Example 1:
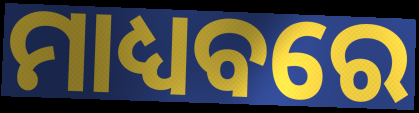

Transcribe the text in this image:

ମାଧ୍ୟବରେ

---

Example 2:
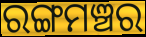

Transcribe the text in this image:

ରଙ୍ଗମଞ୍ଚର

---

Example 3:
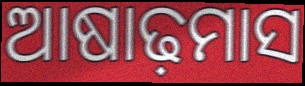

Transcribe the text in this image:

ଆଷାଢ଼ମାସ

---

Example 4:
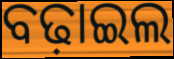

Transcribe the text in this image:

ବଢ଼ାଇଲ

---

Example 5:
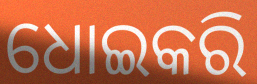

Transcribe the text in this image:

ଧୋଇକରି